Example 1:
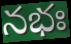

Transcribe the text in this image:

నభః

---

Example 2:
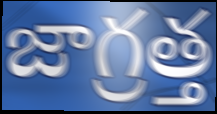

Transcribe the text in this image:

జాగ్రత్త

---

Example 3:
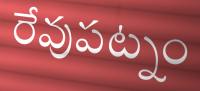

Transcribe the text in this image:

రేవుపట్నం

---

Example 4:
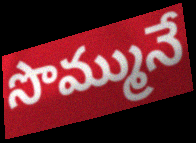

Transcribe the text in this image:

సొమ్మునే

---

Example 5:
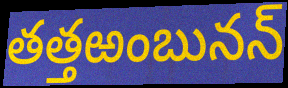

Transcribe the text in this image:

తత్తఱంబునన్